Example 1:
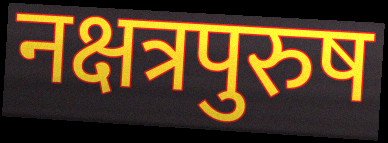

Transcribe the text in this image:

नक्षत्रपुरुष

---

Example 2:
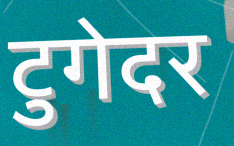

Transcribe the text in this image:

टुगेदर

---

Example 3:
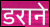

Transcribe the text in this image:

डराने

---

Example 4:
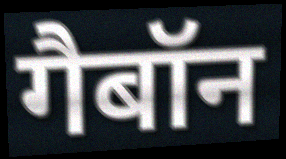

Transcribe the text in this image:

गैबॉन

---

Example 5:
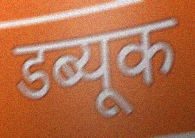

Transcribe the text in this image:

डब्यूक